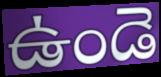
ఉండె